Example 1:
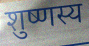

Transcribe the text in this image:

शुष्णस्य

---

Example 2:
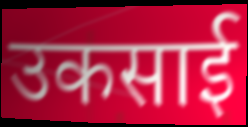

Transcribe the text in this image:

उकसाई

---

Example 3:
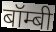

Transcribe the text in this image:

बॉम्बी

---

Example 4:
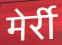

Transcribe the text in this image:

मेर्री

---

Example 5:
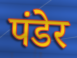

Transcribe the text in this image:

पंडेर